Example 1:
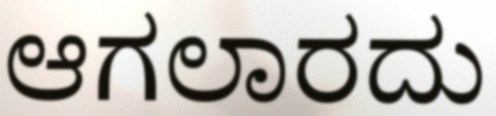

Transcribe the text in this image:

ಆಗಲಾರದು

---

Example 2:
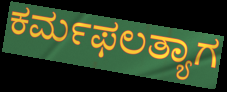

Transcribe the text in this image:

ಕರ್ಮಫಲತ್ಯಾಗ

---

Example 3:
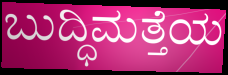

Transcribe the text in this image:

ಬುದ್ಧಿಮತ್ತೆಯ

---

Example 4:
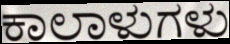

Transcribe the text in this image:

ಕಾಲಾಳುಗಳು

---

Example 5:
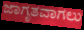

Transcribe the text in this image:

ಜಾಗೃತವಾಗಲು